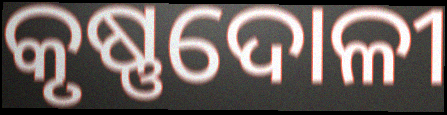
କୃଷ୍ଣଦୋଳୀ